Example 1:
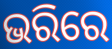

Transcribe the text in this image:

ଭରିରେ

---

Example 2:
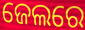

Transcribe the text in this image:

ଜେଲରେ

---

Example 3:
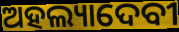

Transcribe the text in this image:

ଅହଲ୍ୟାଦେବୀ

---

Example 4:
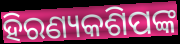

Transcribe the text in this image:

ହିରଣ୍ୟକଶିପଙ୍କ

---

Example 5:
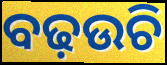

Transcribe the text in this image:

ବଢ଼ଉଚି